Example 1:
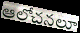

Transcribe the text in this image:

ఆలోచనలూ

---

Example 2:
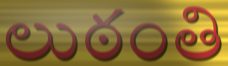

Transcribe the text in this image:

లుఠంతి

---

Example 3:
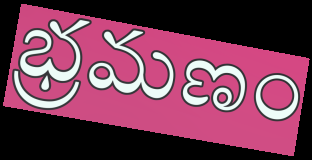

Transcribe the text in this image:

భ్రమణం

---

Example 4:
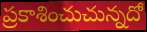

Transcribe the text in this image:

ప్రకాశించుచున్నదో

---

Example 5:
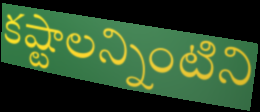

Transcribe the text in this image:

కష్టాలన్నింటిని